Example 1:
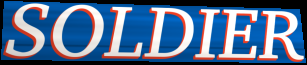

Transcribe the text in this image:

SOLDIER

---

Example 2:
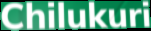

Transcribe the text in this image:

Chilukuri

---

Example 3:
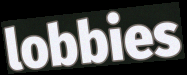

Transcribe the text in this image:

lobbies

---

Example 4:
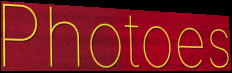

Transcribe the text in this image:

Photoes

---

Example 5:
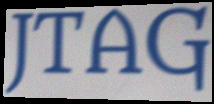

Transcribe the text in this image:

JTAG